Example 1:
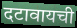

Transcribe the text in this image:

दटावायची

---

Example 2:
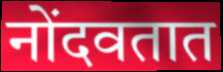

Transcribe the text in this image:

नोंदवतात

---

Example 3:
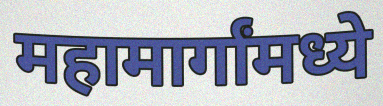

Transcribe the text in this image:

महामार्गांमध्ये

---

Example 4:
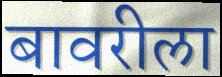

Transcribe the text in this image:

बावरीला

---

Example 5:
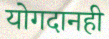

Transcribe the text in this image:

योगदानही